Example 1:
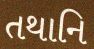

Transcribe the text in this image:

તથાનિ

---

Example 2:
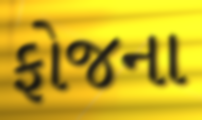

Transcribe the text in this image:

ફોજના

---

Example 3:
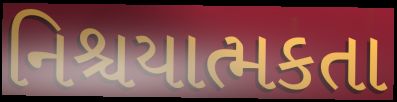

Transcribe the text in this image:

નિશ્ચયાત્મકતા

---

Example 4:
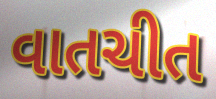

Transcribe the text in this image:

વાતચીત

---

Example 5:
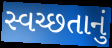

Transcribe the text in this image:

સ્વચ્છતાનું